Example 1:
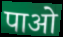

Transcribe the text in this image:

पाओ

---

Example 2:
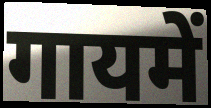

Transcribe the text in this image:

गायमें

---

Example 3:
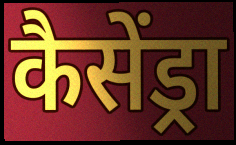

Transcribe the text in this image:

कैसेंड्रा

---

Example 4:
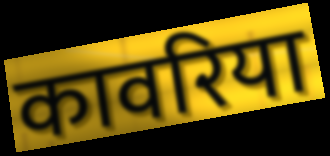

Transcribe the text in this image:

कावरिया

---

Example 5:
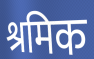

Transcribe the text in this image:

श्रमिक